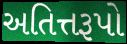
અતિત્તરૂપો